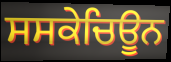
ਸਸਕੇਚਿਊਨ